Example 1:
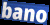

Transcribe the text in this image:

bano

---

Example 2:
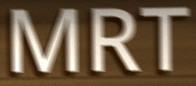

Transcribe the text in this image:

MRT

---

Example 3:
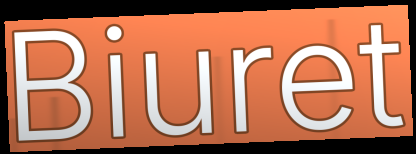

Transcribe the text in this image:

Biuret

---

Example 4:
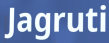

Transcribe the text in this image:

Jagruti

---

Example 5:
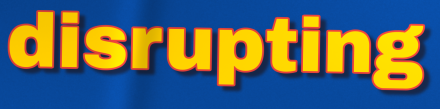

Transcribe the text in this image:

disrupting